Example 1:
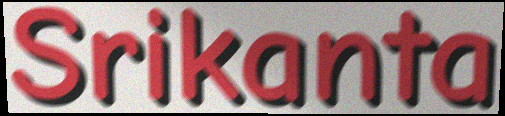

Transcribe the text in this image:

Srikanta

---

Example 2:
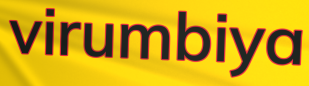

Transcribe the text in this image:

virumbiya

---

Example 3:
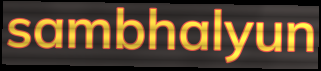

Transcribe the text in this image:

sambhalyun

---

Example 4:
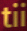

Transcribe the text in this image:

tii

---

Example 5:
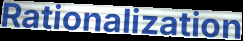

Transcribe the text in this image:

Rationalization